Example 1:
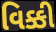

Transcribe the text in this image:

વિક્કી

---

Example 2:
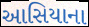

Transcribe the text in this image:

આસિયાના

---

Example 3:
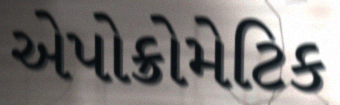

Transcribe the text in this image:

એપોક્રોમેટિક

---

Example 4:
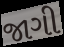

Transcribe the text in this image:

જાગી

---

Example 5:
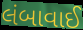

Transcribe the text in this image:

લંબાવાઈ